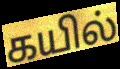
கயில்